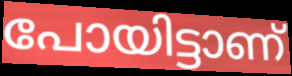
പോയിട്ടാണ്